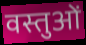
वस्‍तुओं